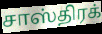
சாஸ்திரக்